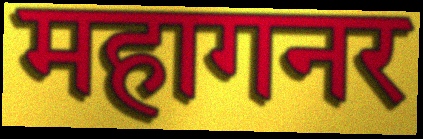
महागनर